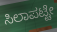
ಸಿಲಾಪಟ್ಟೇ